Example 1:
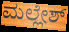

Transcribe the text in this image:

ಮಲ್ಲೇಶ್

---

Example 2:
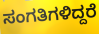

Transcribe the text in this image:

ಸಂಗತಿಗಳಿದ್ದರೆ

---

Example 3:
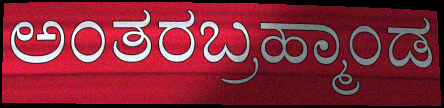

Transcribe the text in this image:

ಅಂತರಬ್ರಹ್ಮಾಂಡ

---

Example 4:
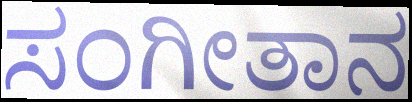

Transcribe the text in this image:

ಸಂಗೀತಾನ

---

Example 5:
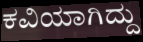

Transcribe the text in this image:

ಕವಿಯಾಗಿದ್ದು